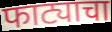
फाट्याचा